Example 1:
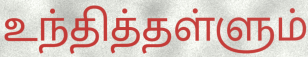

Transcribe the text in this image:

உந்தித்தள்ளும்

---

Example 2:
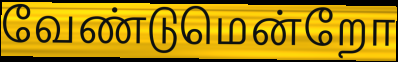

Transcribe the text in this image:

வேண்டுமென்றோ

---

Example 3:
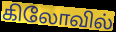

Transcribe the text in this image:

கிலோவில்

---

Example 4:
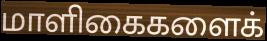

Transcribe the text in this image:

மாளிகைகளைக்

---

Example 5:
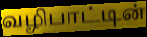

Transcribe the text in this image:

வழிபாட்டின்